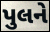
પુલને